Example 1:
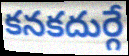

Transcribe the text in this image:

కనకదుర్గే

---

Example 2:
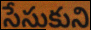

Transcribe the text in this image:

సేసుకుని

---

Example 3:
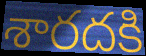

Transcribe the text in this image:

శారదకి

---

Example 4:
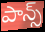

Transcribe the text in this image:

పాన్స్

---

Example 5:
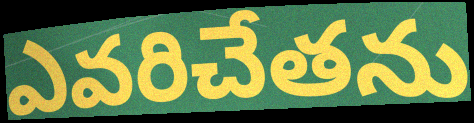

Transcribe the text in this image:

ఎవరిచేతను